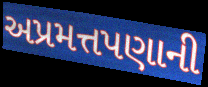
અપ્રમત્તપણાની